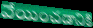
వేయించడానికి